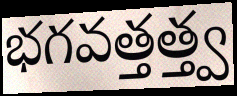
భగవత్తత్త్వ